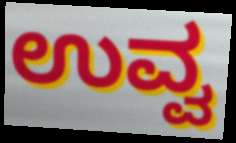
ಉವ್ವ